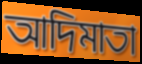
আদিমাতা